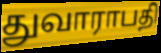
துவாராபதி